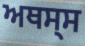
ਅਥਸ੍ਸ